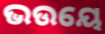
ଭଉୟେ